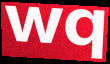
wq